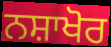
ਨਸ਼ਾਖੋਰ